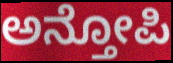
ಅನ್ತೋಪಿ